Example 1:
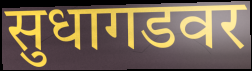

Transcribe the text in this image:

सुधागडवर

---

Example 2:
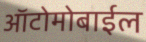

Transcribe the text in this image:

ऑटोमोबाईल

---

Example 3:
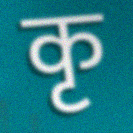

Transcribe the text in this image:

कृ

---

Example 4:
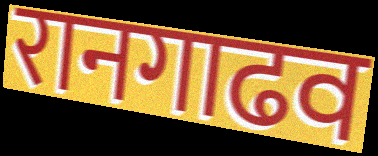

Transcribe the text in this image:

रानगाढव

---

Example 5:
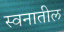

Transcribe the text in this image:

स्वनातील